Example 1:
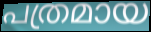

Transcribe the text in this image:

പത്രമായ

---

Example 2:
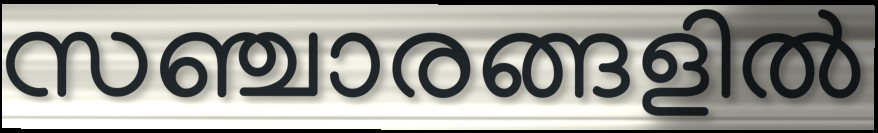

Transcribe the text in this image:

സഞ്ചാരങ്ങളിൽ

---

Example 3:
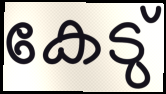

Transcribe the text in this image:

കേടു്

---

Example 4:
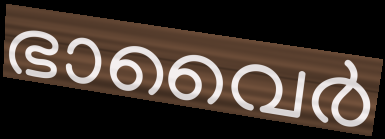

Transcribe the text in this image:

ഭാവൈർ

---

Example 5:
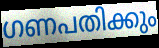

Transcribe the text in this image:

ഗണപതിക്കും